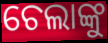
ଚେଲାଙ୍କୁ